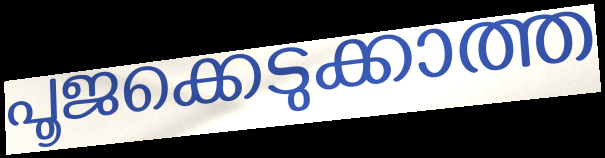
പൂജക്കെടുക്കാത്ത